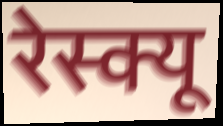
रेस्क्यू